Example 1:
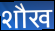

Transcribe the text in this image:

शौख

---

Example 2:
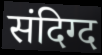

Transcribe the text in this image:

संदिग्द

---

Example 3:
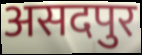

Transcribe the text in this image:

असदपुर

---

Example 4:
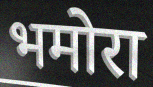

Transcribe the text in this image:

भमोरा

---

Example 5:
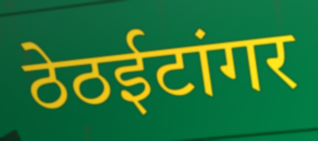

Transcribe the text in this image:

ठेठईटांगर